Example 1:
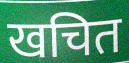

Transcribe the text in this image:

खचित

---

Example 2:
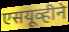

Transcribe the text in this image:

एसयूव्हीने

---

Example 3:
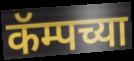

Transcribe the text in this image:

कॅम्पच्या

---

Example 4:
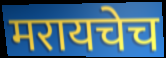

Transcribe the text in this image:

मरायचेच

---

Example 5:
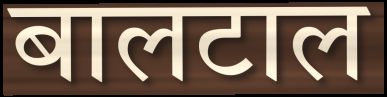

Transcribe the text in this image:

बालटाल